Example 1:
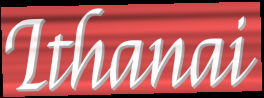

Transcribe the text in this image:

Ithanai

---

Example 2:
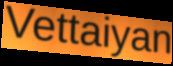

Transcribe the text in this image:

Vettaiyan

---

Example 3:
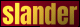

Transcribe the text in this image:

slander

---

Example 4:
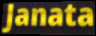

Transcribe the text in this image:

Janata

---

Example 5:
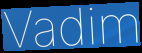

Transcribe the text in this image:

Vadim